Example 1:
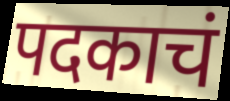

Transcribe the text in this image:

पदकाचं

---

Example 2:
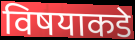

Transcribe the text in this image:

विषयाकडे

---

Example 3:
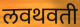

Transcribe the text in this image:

लवथवती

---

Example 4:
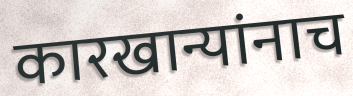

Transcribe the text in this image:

कारखान्यांनाच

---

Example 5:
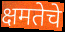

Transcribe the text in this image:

क्षमतेचे